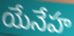
యేనేహ